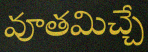
వూతమిచ్చే